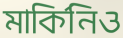
মার্কিনিও